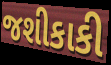
જશીકાકી